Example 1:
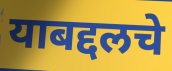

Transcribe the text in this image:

याबद्दलचे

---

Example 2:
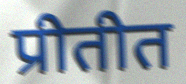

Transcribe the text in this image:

प्रीतीत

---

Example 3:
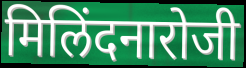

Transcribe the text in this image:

मिलिंदनारोजी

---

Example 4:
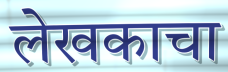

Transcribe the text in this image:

लेखकाचा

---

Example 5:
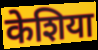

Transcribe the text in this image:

केशिया